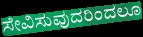
ಸೇವಿಸುವುದರಿಂದಲೂ